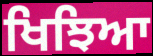
ਖਿਝਿਆ